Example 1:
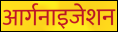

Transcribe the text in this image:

आर्गनाइजेशन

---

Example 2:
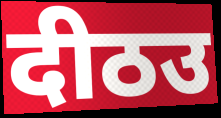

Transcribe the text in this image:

दीठउ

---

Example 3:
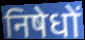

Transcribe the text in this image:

निषेधों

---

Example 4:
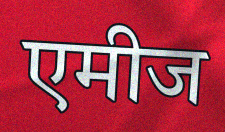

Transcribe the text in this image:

एमीज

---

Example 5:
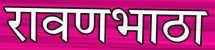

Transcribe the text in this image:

रावणभाठा